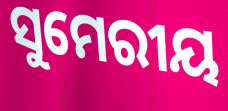
ସୁମେରୀୟ